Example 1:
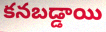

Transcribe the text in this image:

కనబడ్డాయి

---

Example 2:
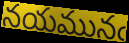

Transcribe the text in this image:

నయమునఁ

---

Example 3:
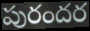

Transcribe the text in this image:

పురందర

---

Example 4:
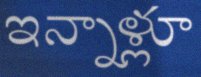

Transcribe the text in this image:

ఇన్నాళ్లూ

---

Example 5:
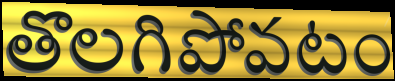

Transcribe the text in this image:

తొలగిపోవటం